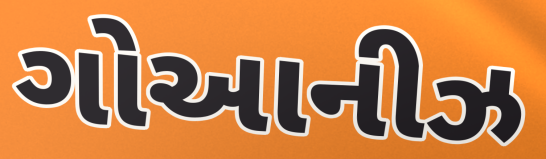
ગોઆનીઝ